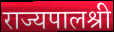
राज्यपालश्री